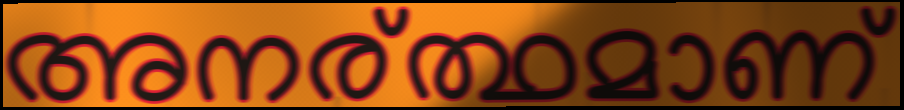
അനര്ത്ഥമാണ്